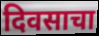
दिवसाचा